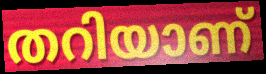
തറിയാണ്